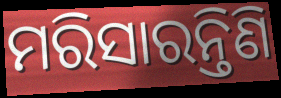
ମରିସାରନ୍ତିଣି